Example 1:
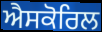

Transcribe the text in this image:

ਐਸਕੋਰਿਲ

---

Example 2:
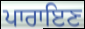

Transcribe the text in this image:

ਪਾਰਾਇਣ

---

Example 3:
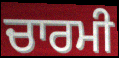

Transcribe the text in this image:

ਚਾਰਮੀ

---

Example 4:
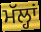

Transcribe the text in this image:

ਮੱਲ੍ਹਾਂ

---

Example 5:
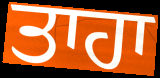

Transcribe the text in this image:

ਤਾਹਾ